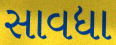
સાવદ્યા